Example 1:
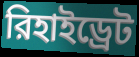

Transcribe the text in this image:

রিহাইড্রেট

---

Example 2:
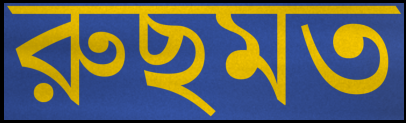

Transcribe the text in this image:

রুছমত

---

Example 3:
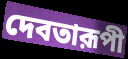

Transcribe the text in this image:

দেবতারূপী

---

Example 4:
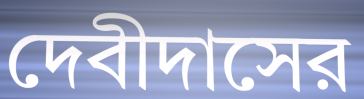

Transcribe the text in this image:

দেবীদাসের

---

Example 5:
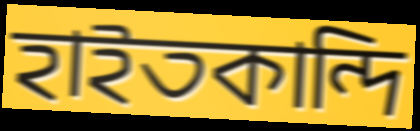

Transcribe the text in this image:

হাইতকান্দি